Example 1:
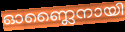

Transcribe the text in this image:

ഓണ്ലൈനായി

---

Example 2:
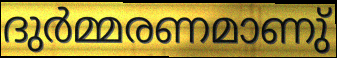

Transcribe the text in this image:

ദുർമ്മരണമാണു്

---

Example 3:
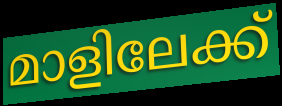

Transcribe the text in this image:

മാളിലേക്ക്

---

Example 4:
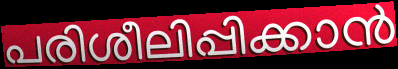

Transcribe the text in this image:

പരിശീലിപ്പിക്കാൻ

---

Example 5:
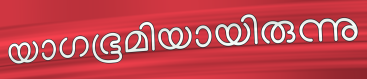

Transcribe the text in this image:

യാഗഭൂമിയായിരുന്നു